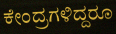
ಕೇಂದ್ರಗಳಿದ್ದರೂ